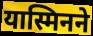
यास्मिनने